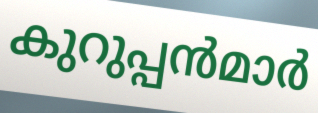
കുറുപ്പൻമാർ